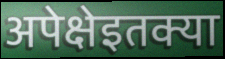
अपेक्षेइतक्या